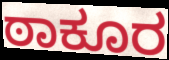
ಠಾಕೂರ